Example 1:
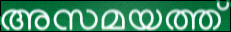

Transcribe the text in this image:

അസമയത്ത്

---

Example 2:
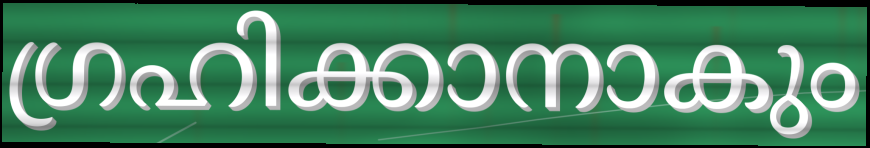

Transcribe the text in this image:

ഗ്രഹിക്കാനാകും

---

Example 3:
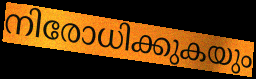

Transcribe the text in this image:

നിരോധിക്കുകയും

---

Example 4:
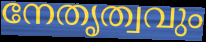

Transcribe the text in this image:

നേതൃത്വവും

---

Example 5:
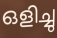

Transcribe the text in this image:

ഒളിച്ചു